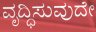
ವೃದ್ಧಿಸುವುದೇ